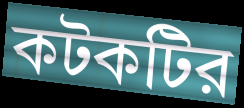
কটকটির